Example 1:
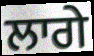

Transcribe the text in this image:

ਲਾਗੇ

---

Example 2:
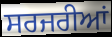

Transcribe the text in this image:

ਸਰਜਰੀਆਂ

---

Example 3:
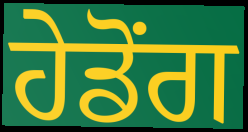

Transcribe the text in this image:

ਹੇਡੋਂਗ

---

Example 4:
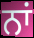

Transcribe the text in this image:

ਨਾਂ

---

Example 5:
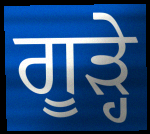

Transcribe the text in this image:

ਗੂੜ੍ਹੇ